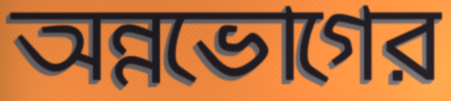
অন্নভোগের